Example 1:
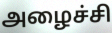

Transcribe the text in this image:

அழைச்சி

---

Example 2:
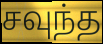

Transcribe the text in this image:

சவுந்த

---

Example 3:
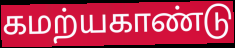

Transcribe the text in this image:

கமற்யகாண்டு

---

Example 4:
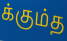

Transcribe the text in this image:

க்கும்த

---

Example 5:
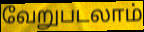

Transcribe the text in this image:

வேறுபடலாம்